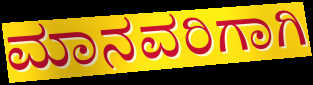
ಮಾನವರಿಗಾಗಿ